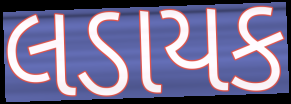
લડાયક